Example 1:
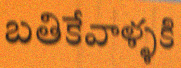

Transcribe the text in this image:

బతికేవాళ్ళకి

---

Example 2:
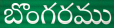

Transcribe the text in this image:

బొంగరము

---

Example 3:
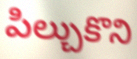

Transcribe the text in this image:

పిల్చుకొని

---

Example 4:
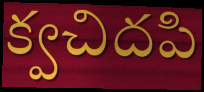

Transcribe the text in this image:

క్వచిదపి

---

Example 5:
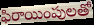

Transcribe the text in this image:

ఫిరాయింపులతో